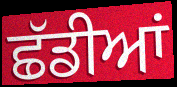
ਛੱਡੀਆਂ